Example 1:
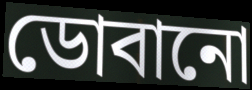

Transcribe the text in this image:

ডোবানো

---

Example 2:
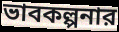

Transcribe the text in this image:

ভাবকল্পনার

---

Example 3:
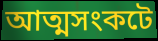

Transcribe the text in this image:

আত্মসংকটে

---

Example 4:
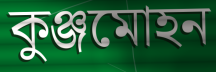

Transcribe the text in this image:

কুঞ্জমোহন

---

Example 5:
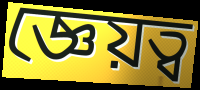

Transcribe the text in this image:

জ্ঞেয়ত্ব